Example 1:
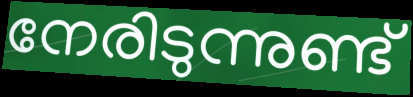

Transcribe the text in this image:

നേരിടുന്നുണ്ട്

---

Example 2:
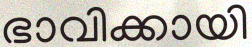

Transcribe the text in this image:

ഭാവിക്കായി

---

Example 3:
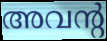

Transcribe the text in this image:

അവന്റ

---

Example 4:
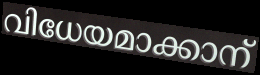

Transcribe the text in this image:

വിധേയമാക്കാന്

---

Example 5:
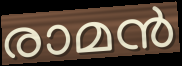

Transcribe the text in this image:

രാമൻ